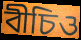
বীচিও